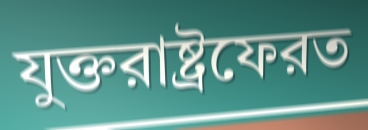
যুক্তরাষ্ট্রফেরত